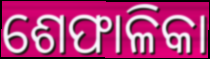
ଶେଫାଳିକା